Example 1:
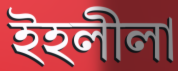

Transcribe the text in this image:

ইহলীলা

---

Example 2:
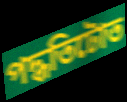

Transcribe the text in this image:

পদ্ধতিটোত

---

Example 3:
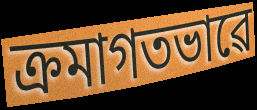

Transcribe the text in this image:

ক্ৰমাগতভাৱে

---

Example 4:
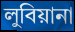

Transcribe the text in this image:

লুবিয়ানা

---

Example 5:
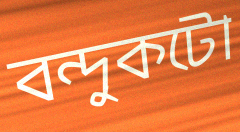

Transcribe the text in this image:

বন্দুকটো